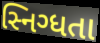
સ્નિગ્ધતા